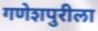
गणेशपुरीला